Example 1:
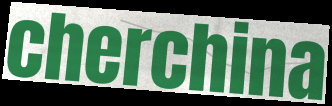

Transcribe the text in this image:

cherchina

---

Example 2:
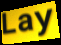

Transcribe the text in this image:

Lay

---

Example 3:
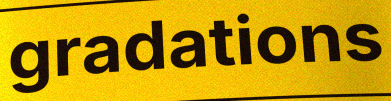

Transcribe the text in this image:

gradations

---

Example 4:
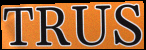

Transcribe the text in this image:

TRUS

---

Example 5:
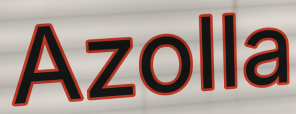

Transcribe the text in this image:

Azolla